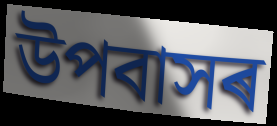
উপবাসৰ